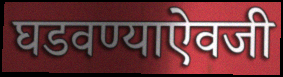
घडवण्याऐवजी